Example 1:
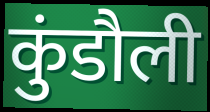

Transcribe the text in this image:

कुंडौली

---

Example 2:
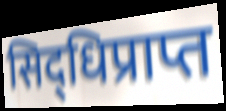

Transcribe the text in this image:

सिद्धिप्राप्त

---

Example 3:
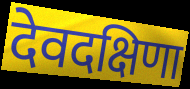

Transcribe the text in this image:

देवदक्षिणा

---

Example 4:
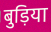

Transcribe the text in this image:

बुड़िया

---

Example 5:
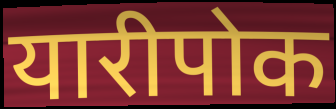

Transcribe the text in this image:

यारीपोक